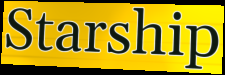
Starship